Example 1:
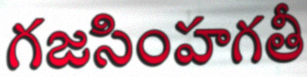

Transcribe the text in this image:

గజసింహగతీ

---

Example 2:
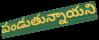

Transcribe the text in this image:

పండుతున్నాయని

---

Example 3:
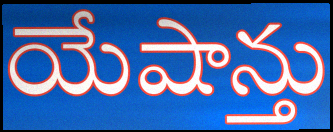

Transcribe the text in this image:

యేషాన్తు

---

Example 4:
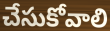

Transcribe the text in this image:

చేసుకోవాలి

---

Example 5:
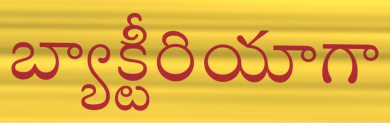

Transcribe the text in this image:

బ్యాక్టీరియాగా